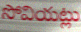
సోవియట్లు